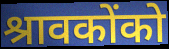
श्रावकोंको